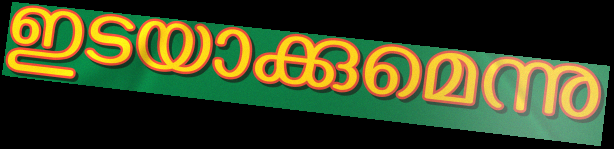
ഇടയാക്കുമെന്നു